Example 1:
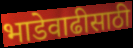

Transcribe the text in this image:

भाडेवाढीसाठी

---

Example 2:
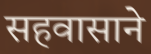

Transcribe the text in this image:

सहवासाने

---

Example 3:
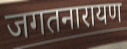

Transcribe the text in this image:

जगतनारायण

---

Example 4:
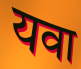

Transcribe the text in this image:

यवा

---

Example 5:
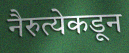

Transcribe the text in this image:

नैरुत्येकडून